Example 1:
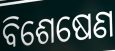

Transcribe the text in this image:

ବିଶେଷେଣ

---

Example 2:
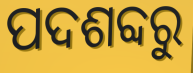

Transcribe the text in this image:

ପଦଶବ୍ଦରୁ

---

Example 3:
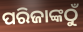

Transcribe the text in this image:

ପରିଜାଙ୍କଠୁଁ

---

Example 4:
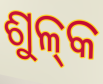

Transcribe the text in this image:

ଶୁଳ୍‌କ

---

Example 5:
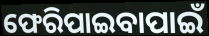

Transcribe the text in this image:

ଫେରିପାଇବାପାଇଁ